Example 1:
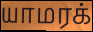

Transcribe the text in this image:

யாமரக்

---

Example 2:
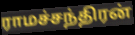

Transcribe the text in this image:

ராமச்சந்திரன்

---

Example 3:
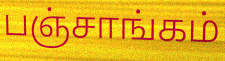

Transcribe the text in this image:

பஞ்சாங்கம்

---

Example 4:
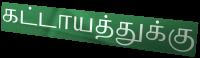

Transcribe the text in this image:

கட்டாயத்துக்கு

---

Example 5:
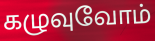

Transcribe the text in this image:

கழுவுவோம்